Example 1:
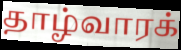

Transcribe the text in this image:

தாழ்வாரக்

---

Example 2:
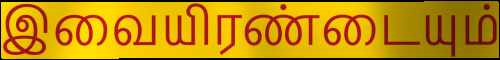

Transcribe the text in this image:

இவையிரண்டையும்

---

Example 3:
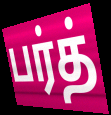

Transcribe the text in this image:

பர்த்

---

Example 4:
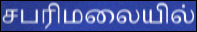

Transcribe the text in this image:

சபரிமலையில்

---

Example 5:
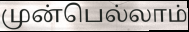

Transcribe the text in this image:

முன்பெல்லாம்